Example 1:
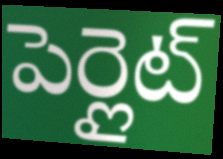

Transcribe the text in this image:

పెర్లైట్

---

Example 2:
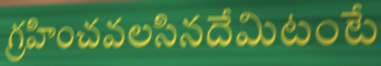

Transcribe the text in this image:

గ్రహించవలసినదేమిటంటే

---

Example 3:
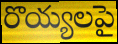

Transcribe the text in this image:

రొయ్యలపై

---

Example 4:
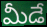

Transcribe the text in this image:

మీడే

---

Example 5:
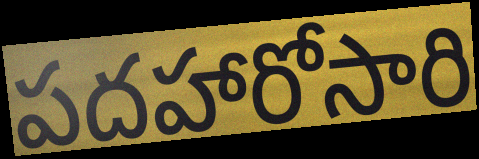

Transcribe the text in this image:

పదహారోసారి